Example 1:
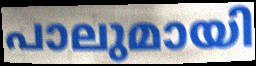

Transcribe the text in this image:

പാലുമായി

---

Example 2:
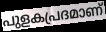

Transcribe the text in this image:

പുളകപ്രദമാണ്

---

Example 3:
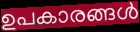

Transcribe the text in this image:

ഉപകാരങ്ങൾ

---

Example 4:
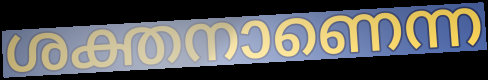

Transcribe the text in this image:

ശക്തനാണെന്ന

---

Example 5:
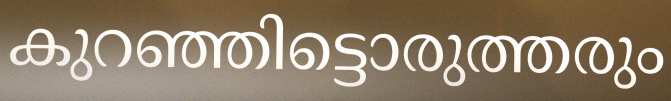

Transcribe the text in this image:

കുറഞ്ഞിട്ടൊരുത്തരും